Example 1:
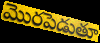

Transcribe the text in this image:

మొరపెడుతూ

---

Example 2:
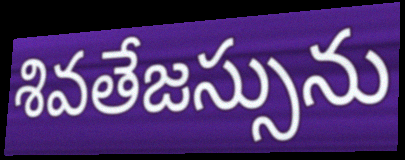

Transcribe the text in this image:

శివతేజస్సును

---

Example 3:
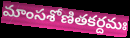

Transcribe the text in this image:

మాంసశోణితకర్దమః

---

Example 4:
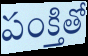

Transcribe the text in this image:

పంక్తితో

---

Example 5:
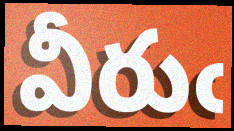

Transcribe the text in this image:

వీరుఁ